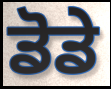
ਡੋਡੇ